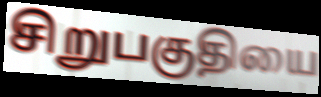
சிறுபகுதியை